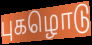
புகழொடு